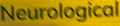
Neurological